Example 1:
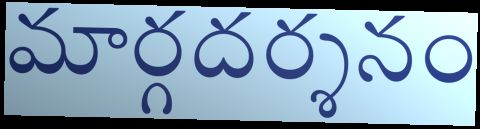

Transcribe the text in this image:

మార్గదర్శనం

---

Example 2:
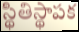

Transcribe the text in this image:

స్థితిస్థాపక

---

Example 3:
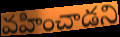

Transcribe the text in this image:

వహించాడని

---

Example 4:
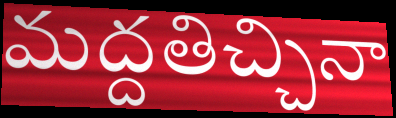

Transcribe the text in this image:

మద్దతిచ్చినా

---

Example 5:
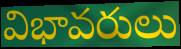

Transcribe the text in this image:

విభావరులు